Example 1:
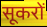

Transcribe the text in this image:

सूकरों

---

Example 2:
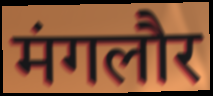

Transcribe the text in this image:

मंगलौर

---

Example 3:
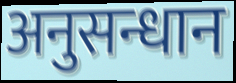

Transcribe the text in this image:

अनुसन्धान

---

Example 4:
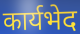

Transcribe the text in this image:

कार्यभेद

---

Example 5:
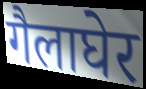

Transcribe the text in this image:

गैलाघेर